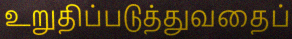
உறுதிப்படுத்துவதைப்